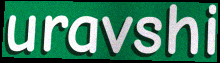
uravshi